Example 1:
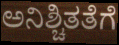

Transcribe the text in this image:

ಅನಿಶ್ಚಿತತೆಗೆ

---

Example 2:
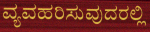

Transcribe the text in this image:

ವ್ಯವಹರಿಸುವುದರಲ್ಲಿ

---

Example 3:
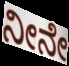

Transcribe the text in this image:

ನೀನೇ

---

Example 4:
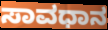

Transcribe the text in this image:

ಸಾವಧಾನ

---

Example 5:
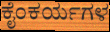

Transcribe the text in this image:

ಕೈಂಕರ್ಯಗಳ